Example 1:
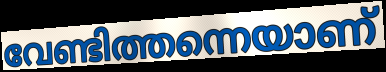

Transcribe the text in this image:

വേണ്ടിത്തന്നെയാണ്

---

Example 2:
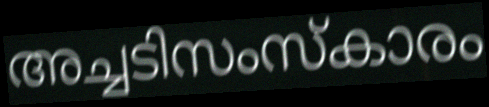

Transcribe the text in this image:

അച്ചടിസംസ്കാരം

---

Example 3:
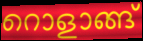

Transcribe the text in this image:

റൊളാങ്ങ്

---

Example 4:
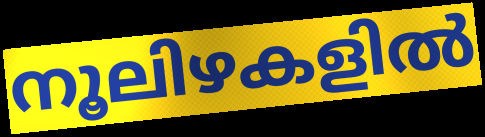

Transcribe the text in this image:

നൂലിഴകളിൽ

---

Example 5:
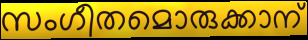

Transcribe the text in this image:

സംഗീതമൊരുക്കാന്